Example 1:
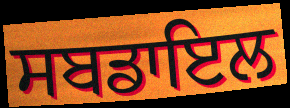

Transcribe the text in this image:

ਸਬਡਾਇਲ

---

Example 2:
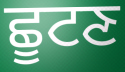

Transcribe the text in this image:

ਛੂਟਣ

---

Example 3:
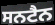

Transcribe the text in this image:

ਸਨਟੈਨ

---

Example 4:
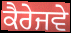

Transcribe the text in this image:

ਕੈਰੇਜਵੇ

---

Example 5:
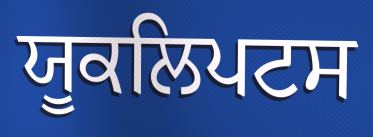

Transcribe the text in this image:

ਯੂਕਲਿਪਟਸ